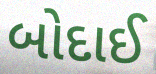
બોદાઈ